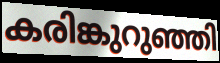
കരിങ്കുറുഞ്ഞി